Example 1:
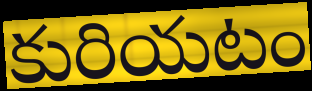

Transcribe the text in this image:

కురియటం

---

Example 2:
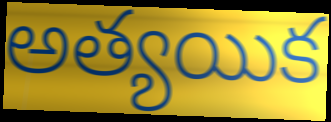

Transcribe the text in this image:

అత్యయిక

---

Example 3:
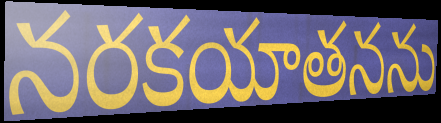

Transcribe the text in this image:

నరకయాతనను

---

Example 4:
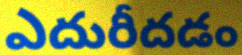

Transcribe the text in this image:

ఎదురీదడం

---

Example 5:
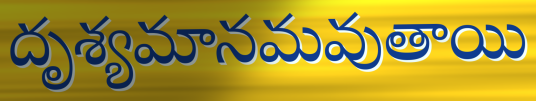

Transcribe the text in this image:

దృశ్యమానమవుతాయి